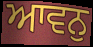
ਆਵਨੁ